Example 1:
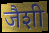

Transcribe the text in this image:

जैशी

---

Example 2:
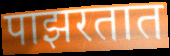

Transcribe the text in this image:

पाझरतात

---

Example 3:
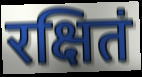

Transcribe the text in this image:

रक्षितं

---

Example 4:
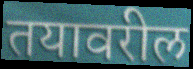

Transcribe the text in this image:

तयावरील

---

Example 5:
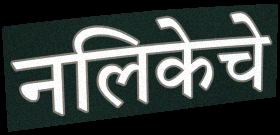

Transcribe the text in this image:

नलिकेचे